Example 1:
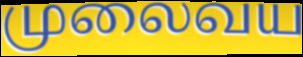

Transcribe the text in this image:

முலைவய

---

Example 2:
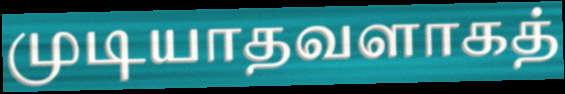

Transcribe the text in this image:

முடியாதவளாகத்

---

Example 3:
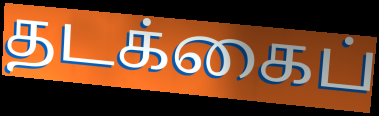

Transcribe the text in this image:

தடக்கைப்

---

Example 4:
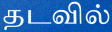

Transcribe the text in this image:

தடவில்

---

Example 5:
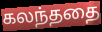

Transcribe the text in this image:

கலந்ததை